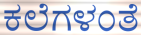
ಕಲೆಗಳಂತೆ